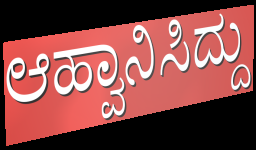
ಆಹ್ವಾನಿಸಿದ್ದು